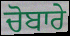
ਚੋਬਾਰੇ